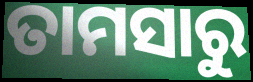
ତାମସାରୁ